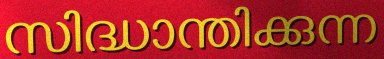
സിദ്ധാന്തിക്കുന്ന